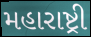
મહારાષ્ટ્રી